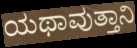
ಯಥಾವುತ್ತಾನಿ